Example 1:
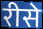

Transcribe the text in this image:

रीसे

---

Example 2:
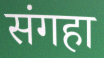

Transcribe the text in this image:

संगहा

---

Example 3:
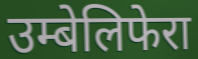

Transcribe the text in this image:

उम्बेलिफेरा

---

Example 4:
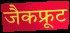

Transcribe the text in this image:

जैकफ्रूट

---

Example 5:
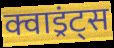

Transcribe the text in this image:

क्वाड्रंट्स